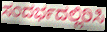
ಸಂದರ್ಭದಲ್ಲಿರಿಸಿ